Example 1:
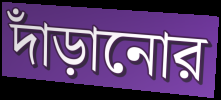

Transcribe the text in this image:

দাঁড়ানোর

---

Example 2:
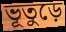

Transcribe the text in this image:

ভূতুড়ে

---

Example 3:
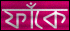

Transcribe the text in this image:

ফাঁকে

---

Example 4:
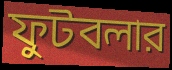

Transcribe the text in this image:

ফুটবলার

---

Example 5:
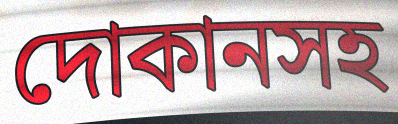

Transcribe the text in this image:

দোকানসহ